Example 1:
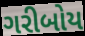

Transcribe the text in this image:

ગરીબોય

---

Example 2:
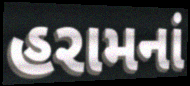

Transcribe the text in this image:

હરામનાં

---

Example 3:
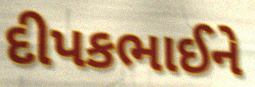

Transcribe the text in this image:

દીપકભાઈને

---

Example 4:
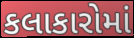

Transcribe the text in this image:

કલાકારોમાં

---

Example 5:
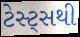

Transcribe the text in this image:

ટેસ્ટ્સથી